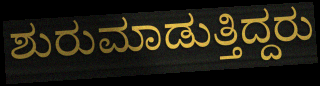
ಶುರುಮಾಡುತ್ತಿದ್ದರು